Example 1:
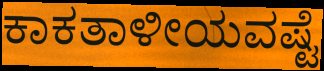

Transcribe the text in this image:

ಕಾಕತಾಳೀಯವಷ್ಟೆ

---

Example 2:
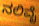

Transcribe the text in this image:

ನಲಿವೈ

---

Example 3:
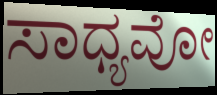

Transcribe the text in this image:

ಸಾಧ್ಯವೋ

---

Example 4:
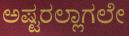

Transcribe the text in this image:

ಅಷ್ಟರಲ್ಲಾಗಲೇ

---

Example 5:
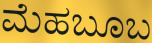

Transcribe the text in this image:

ಮೆಹಬೂಬ